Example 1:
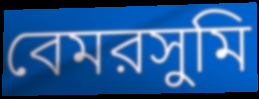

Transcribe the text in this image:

বেমরসুমি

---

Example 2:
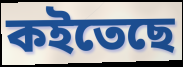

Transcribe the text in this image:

কইতেছে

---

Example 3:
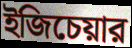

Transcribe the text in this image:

ইজিচেয়ার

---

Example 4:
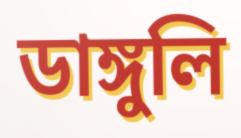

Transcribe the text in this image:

ডাঙ্গুলি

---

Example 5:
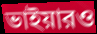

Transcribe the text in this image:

ভাইয়ারও